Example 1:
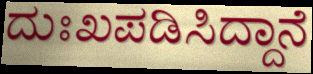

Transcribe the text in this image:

ದುಃಖಪಡಿಸಿದ್ದಾನೆ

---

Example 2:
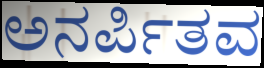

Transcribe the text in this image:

ಅನರ್ಪಿತವ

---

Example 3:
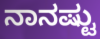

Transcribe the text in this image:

ನಾನಷ್ಟು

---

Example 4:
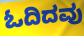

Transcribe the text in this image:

ಓದಿದವು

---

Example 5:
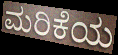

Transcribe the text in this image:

ಮರಿಕೆಯ